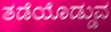
ತಡೆಯೊಡ್ಡುವ